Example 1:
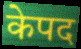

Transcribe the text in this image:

केपद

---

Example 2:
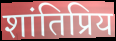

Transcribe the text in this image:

शांतिप्रिय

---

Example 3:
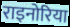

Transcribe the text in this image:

राइनोरिया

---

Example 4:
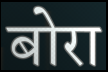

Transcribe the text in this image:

बोरा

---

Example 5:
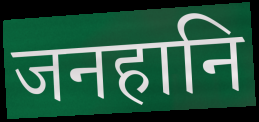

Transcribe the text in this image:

जनहानि